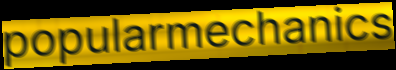
popularmechanics